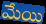
మేయి